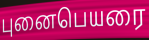
புனைபெயரை